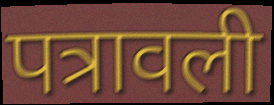
पत्रावली